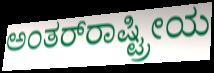
ಅಂತರ್‌ರಾಷ್ಟ್ರೀಯ